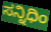
ಸನ್ನಿಧಿಂ